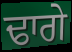
ਢਾਗੇ